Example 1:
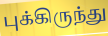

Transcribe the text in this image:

புக்கிருந்து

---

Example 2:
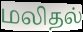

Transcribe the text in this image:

மலிதல்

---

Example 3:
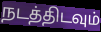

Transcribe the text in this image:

நடத்திடவும்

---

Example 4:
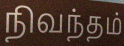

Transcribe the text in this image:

நிவந்தம்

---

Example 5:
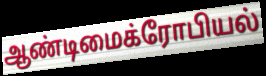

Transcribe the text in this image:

ஆண்டிமைக்ரோபியல்